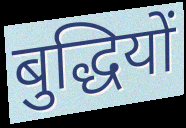
बुद्धियों